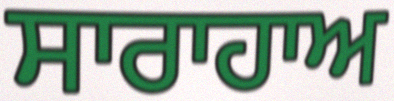
ਸਾਰਾਹਾਅ